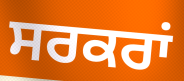
ਸਰਕਰਾਂ